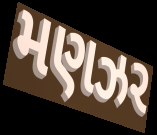
મણઝર